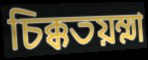
চিক্কতয়ম্মা